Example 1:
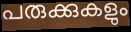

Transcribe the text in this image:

പരുക്കുകളും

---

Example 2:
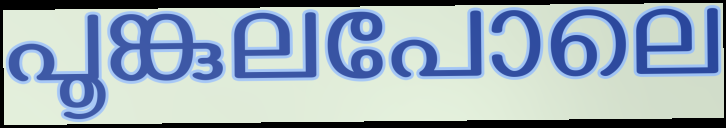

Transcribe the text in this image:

പൂങ്കുലപോലെ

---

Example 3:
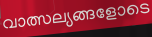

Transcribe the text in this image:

വാത്സല്യങ്ങളോടെ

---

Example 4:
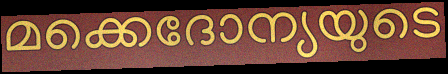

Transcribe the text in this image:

മക്കെദോന്യയുടെ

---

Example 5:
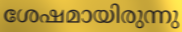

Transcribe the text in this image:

ശേഷമായിരുന്നു